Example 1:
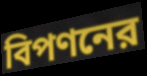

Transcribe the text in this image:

বিপণনের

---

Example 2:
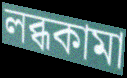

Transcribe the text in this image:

লব্ধকামা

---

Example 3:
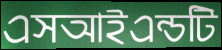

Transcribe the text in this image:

এসআইএন্ডটি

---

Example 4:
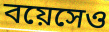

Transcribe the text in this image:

বয়েসেও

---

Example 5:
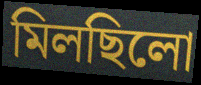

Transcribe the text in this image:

মিলছিলো